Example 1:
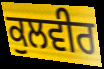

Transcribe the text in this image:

ਕੁਲਵੀਰ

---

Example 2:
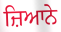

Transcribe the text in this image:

ਜ਼ਿਆਨੇ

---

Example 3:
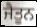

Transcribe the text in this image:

ਜੈਤੂਨ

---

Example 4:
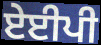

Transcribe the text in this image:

ਏਈਪੀ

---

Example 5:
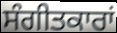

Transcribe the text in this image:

ਸੰਗੀਤਕਾਰਾਂ